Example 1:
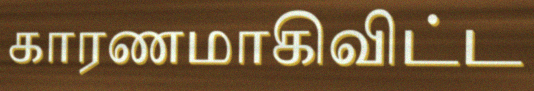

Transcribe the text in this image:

காரணமாகிவிட்ட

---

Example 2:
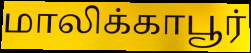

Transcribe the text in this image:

மாலிக்காபூர்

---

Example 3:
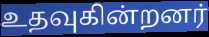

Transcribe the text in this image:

உதவுகின்றனர்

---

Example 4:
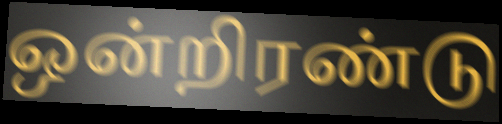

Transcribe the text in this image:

ஒன்றிரண்டு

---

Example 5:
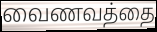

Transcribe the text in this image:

வைணவத்தை